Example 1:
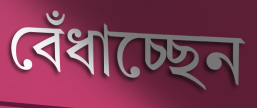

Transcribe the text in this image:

বেঁধাচ্ছেন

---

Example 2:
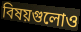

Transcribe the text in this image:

বিষয়গুলোও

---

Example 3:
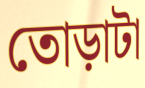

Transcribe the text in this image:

তোড়াটা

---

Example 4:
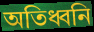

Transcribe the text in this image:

অতিধ্বনি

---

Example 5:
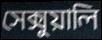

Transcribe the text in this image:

সেক্সুয়ালি